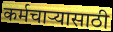
कर्मचाऱ्यासाठी